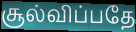
சூல்விப்பதே